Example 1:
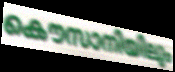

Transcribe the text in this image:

കൌസാനിയിലും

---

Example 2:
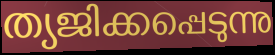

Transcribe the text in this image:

ത്യജിക്കപ്പെടുന്നു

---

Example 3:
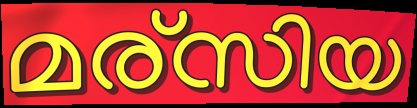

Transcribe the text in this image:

മര്സിയ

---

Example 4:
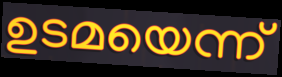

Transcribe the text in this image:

ഉടമയെന്ന്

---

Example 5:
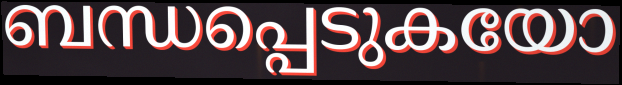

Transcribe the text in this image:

ബന്ധപ്പെടുകയോ